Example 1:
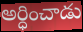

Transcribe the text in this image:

అర్ధించాడు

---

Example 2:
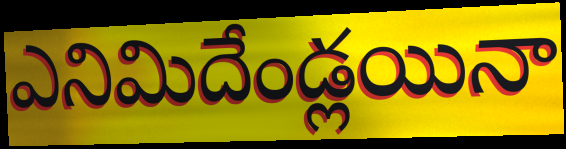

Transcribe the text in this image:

ఎనిమిదేండ్లయినా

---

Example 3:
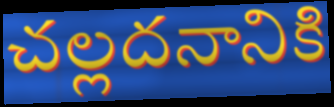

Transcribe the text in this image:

చల్లదనానికి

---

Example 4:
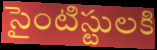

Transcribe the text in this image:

సైంటిస్టులకి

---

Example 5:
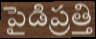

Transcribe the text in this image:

పైడిప్రత్తి